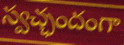
స్వచ్ఛందంగా